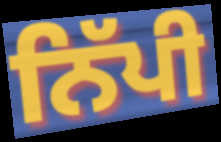
ਨਿੱਪੀ